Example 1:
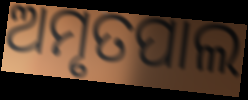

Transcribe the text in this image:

ଅମୃତପାଲ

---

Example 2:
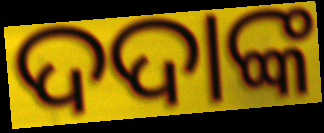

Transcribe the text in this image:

ଦଦାଙ୍କ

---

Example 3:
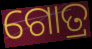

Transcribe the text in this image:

ଗୋତ୍ର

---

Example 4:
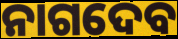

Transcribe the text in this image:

ନାଗଦେବ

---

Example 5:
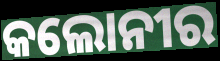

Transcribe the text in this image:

କଲୋନୀର